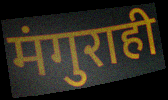
मंगुराही